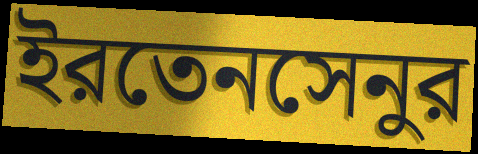
ইরতেনসেনুর